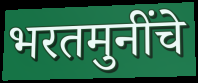
भरतमुनींचे